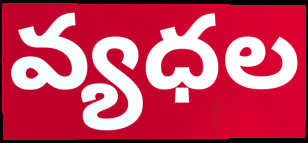
వ్యధల